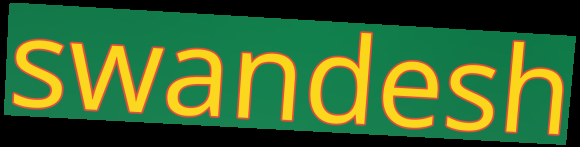
swandesh